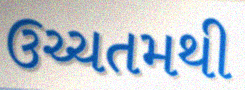
ઉચ્ચતમથી